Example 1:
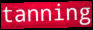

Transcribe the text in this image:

tanning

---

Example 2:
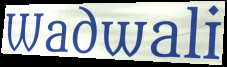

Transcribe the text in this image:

Wadwali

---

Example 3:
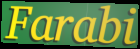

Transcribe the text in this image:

Farabi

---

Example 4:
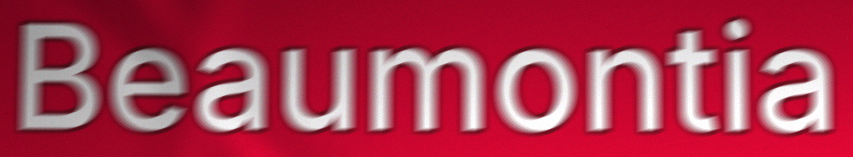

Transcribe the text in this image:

Beaumontia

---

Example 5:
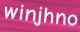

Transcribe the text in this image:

winjhno